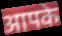
आपके